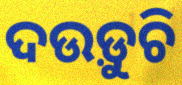
ଦଉଡ଼ୁଚି